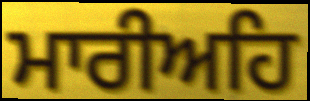
ਮਾਰੀਅਹਿ